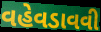
વહેવડાવવી